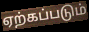
ஏற்கப்படும்